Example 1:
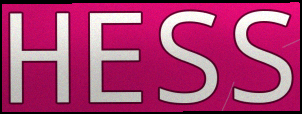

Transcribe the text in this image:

HESS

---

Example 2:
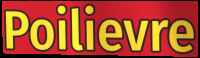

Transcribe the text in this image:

Poilievre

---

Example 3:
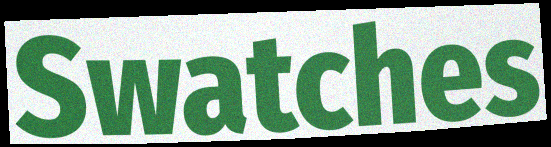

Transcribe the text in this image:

Swatches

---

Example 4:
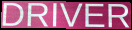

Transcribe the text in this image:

DRIVER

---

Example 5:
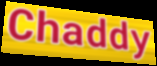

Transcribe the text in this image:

Chaddy